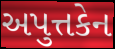
અપુત્તકેન